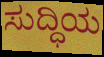
ಸುದ್ಧಿಯ